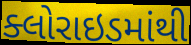
ક્લોરાઇડમાંથી